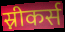
स्नीकर्स